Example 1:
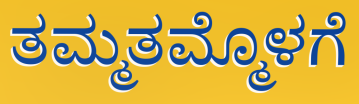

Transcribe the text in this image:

ತಮ್ಮತಮ್ಮೊಳಗೆ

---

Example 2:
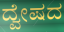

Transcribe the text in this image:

ದ್ವೇಷದ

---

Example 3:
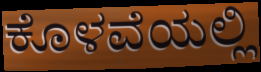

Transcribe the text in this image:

ಕೊಳವೆಯಲ್ಲಿ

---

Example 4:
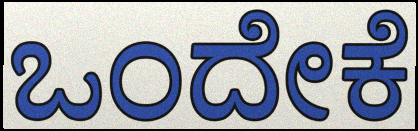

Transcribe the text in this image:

ಒಂದೇಕೆ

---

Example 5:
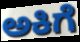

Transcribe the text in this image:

ಅಕಿಗೆ